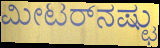
ಮೀಟರ್‌ನಷ್ಟು